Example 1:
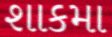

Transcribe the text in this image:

શાકમા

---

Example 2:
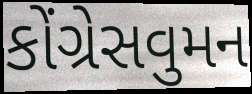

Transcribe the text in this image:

કોંગ્રેસવુમન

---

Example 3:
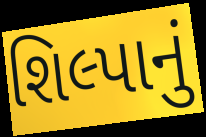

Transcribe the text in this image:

શિલ્પાનું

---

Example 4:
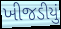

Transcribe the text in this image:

ખીજડીયું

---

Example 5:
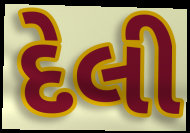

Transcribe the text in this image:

દેલી